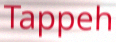
Tappeh